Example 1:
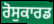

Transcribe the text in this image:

ਰੋਸੁਕਾਰਡ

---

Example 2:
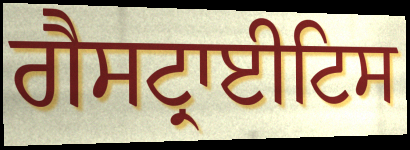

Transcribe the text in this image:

ਗੈਸਟ੍ਰਾਈਟਿਸ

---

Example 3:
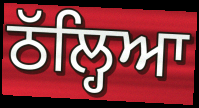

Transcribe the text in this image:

ਠੱਲ੍ਹਿਆ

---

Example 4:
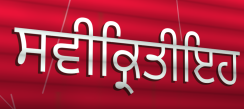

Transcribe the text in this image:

ਸਵੀਕ੍ਰਿਤੀਇਹ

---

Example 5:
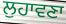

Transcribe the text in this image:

ਲੁਹਾਵਣਾ